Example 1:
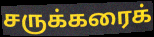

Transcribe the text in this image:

சருக்கரைக்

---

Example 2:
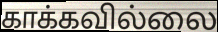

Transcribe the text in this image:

காக்கவில்லை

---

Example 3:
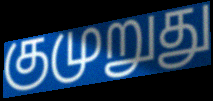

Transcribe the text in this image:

குமுறுது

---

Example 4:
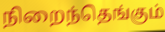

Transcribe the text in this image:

நிறைந்தெங்கும்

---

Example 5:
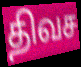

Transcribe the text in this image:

திவச